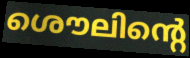
ശൌലിന്റെ